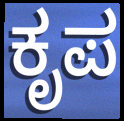
ಕೃಪ